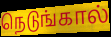
நெடுங்கால்